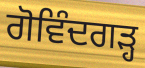
ਗੋਵਿੰਦਗੜ੍ਹ